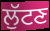
ਲੁੱਟਣ